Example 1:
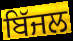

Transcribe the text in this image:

ਬਿੱਜਲ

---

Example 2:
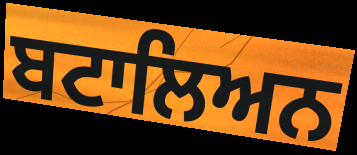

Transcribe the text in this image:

ਬਟਾਲਿਅਨ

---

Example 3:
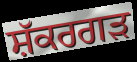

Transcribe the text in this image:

ਸ਼ੱਕਰਗੜ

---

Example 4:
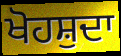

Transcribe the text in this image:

ਖੋਹਸ਼ੁਦਾ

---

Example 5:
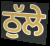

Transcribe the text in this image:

ਠੁੱਲੇ